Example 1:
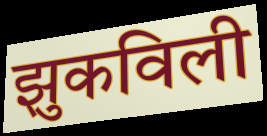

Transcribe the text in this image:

झुकविली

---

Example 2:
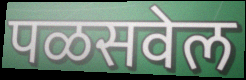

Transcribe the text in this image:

पळसवेल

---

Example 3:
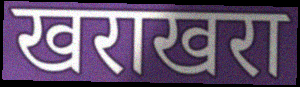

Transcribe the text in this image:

खराखरा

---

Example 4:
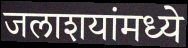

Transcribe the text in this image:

जलाशयांमध्ये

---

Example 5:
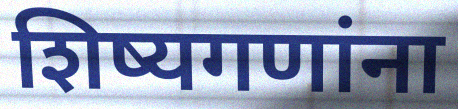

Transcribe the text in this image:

शिष्यगणांना